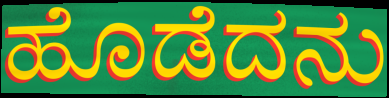
ಹೊಡೆದನು